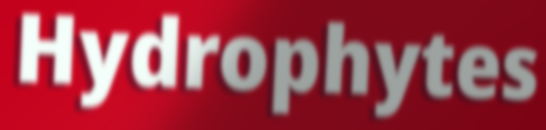
Hydrophytes